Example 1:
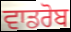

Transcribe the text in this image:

ਵਾਡਰੋਬ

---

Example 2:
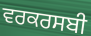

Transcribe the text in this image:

ਵਰਕਰਸਬੀ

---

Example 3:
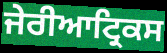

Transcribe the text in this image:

ਜੇਰੀਆਟ੍ਰਿਕਸ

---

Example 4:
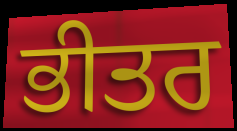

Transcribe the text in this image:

ਭੀਤਰ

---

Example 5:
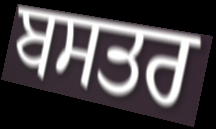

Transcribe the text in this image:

ਬਸਤਰ